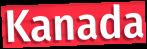
Kanada